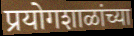
प्रयोगशाळांच्या